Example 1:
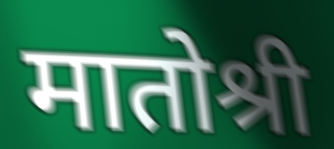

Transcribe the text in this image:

मातोश्री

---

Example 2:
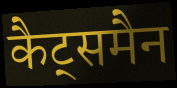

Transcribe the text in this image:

कैट्समैन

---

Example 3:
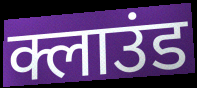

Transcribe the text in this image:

क्लाउंड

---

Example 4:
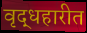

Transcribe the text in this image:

वृद्धहारीत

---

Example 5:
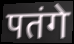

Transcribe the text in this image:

पतंगे